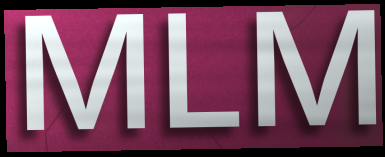
MLM